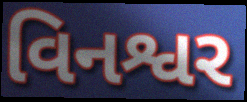
વિનશ્વર